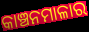
କାଞ୍ଚନମାଳାର